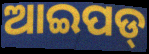
ଆଇପଡ୍